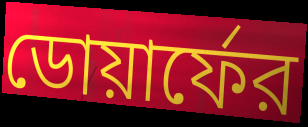
ডোয়ার্ফের